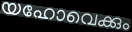
യഹോവെക്കും